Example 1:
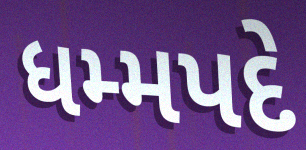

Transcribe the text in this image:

ધમ્મપદે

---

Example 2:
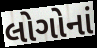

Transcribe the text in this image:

લોગોનાં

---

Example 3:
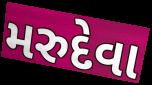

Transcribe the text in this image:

મરુદેવા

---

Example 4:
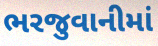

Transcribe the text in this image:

ભરજુવાનીમાં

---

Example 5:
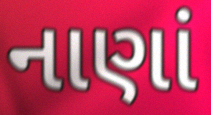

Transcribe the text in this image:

નાણાં